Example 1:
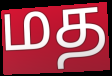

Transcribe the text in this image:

மத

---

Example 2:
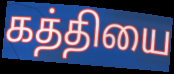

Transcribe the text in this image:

கத்தியை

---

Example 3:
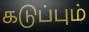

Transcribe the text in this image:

கடுப்பும்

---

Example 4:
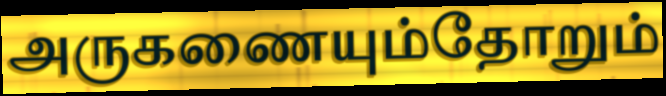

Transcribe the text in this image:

அருகணையும்தோறும்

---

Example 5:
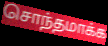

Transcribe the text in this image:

சொந்தமாக்க